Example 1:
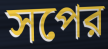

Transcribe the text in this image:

সপের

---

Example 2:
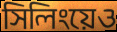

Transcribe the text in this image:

সিলিংয়েও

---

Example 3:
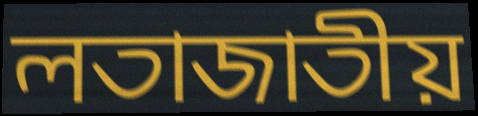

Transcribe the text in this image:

লতাজাতীয়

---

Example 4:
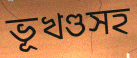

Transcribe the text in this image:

ভূখণ্ডসহ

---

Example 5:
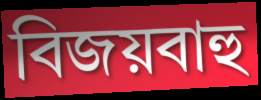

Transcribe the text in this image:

বিজয়বাহু